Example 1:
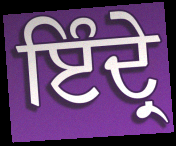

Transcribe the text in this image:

ਇੰਦ੍ਰੇ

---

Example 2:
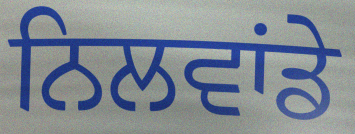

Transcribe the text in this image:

ਨਿਲਵਾਂਡੇ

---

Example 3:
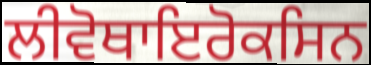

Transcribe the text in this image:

ਲੀਵੋਥਾਇਰੋਕਸਿਨ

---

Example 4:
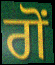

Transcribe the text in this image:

ਗੋਂ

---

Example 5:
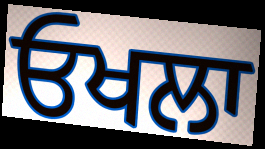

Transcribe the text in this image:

ਓਖਲਾ